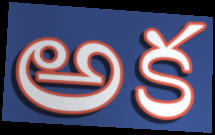
అక